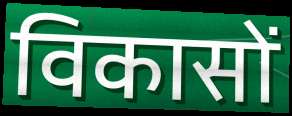
विकासों